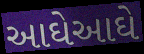
આઘેઆઘે